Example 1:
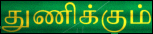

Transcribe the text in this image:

துணிக்கும்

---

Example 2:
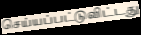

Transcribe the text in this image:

செய்யப்பட்டுவிட்டது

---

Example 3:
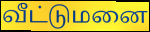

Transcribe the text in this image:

வீட்டுமனை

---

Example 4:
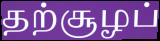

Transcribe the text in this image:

தற்சூழப்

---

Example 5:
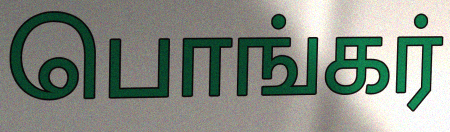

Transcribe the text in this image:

பொங்கர்